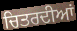
ਚਿਤਰਦੀਆਂ